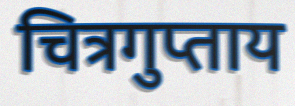
चित्रगुप्ताय